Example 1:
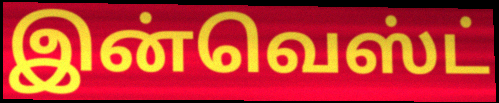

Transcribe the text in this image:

இன்வெஸ்ட்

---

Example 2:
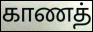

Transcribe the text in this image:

காணத்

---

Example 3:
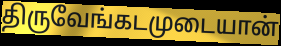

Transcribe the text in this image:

திருவேங்கடமுடையான்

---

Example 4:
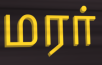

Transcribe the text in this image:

மரர்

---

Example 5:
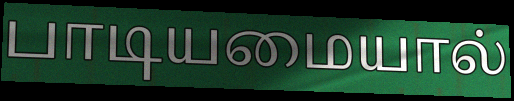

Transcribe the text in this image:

பாடியமையால்